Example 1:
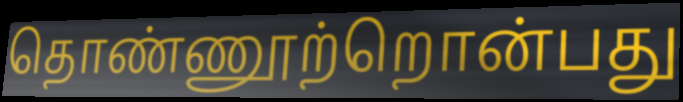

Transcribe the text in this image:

தொண்ணூற்றொன்பது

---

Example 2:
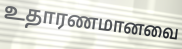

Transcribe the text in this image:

உதாரணமானவை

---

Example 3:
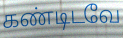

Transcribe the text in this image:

கண்டிடவே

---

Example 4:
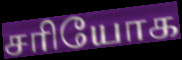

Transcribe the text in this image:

சரியோக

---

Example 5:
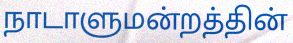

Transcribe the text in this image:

நாடாளுமன்றத்தின்